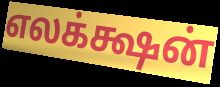
எலக்க்ஷன்